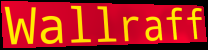
Wallraff